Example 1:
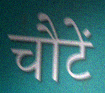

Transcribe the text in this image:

चौटें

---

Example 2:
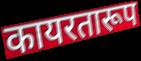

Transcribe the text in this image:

कायरतारूप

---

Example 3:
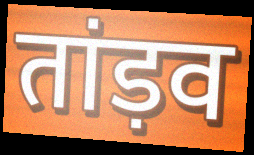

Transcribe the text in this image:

तांड़व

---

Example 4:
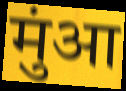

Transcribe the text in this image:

मुंआ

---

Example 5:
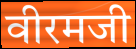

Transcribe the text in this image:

वीरमजी